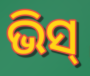
ଭିସ୍